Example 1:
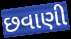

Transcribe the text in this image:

છવાણી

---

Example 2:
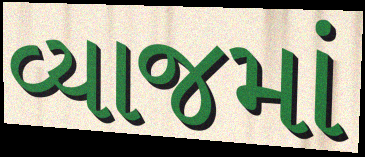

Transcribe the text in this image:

વ્યાજમાં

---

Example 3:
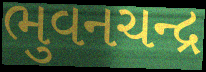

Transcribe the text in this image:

ભુવનચન્દ્ર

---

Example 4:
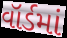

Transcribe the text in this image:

વૉર્ડમાં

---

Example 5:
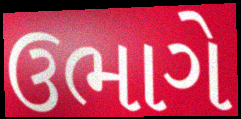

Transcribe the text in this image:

ઉભાગે